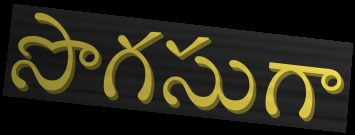
సొగసుగా